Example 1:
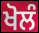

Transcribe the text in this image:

ਖੋਲੰ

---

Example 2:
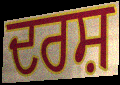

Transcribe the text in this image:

ਦਰਸ਼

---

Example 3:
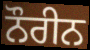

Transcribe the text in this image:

ਨੌਰੀਨ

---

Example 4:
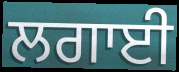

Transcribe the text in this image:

ਲਗਾਈ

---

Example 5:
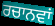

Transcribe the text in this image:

ਰਚਾਨਵਾਂ